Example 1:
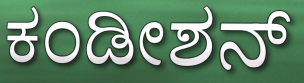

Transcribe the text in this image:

ಕಂಡೀಶನ್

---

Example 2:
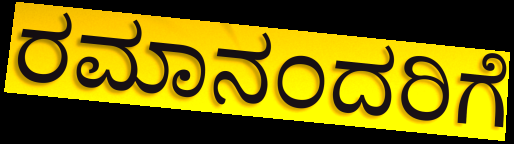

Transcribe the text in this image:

ರಮಾನಂದರಿಗೆ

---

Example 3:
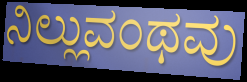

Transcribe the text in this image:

ನಿಲ್ಲುವಂಥವು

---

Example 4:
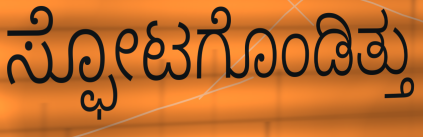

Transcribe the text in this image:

ಸ್ಫೋಟಗೊಂಡಿತ್ತು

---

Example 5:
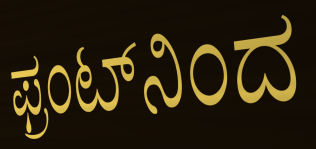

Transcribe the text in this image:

ಫ್ರಂಟ್‌ನಿಂದ